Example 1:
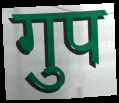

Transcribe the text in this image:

गुप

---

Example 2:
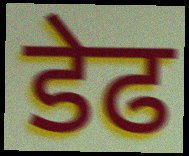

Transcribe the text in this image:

डेढ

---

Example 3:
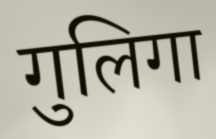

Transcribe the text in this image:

गुलिगा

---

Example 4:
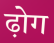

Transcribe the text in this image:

ढ़ोग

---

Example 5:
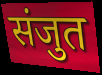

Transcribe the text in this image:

संजुत